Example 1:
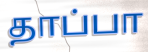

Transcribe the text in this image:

தாப்பா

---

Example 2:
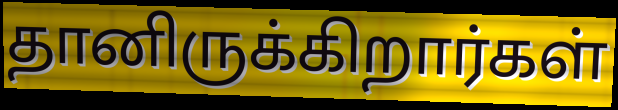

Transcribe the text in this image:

தானிருக்கிறார்கள்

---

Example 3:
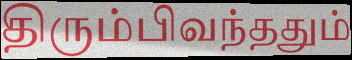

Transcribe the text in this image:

திரும்பிவந்ததும்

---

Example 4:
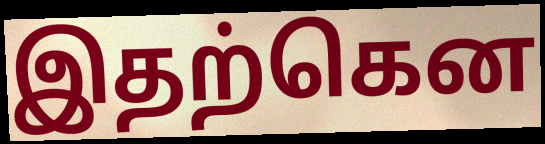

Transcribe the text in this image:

இதற்கென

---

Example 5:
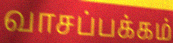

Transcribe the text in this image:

வாசப்பக்கம்